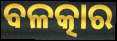
ବଳତ୍କାର